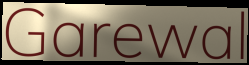
Garewal